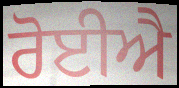
ਰੋਈਐ